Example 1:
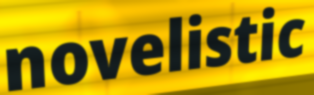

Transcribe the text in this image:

novelistic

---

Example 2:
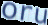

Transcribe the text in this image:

oru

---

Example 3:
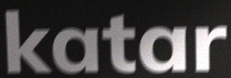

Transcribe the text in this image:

katar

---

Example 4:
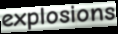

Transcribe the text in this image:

explosions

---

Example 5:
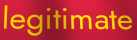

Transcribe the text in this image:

legitimate